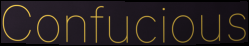
Confucious